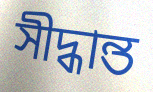
সীদ্ধান্ত